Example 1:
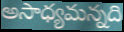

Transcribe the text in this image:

అసాధ్యమన్నది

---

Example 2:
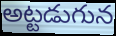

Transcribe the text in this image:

అట్టడుగున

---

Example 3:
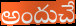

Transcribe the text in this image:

అందుచే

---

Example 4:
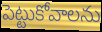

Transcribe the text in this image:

పెట్టుకోవాలను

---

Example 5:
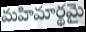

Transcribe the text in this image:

మహిమార్థమై